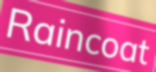
Raincoat